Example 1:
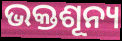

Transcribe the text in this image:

ଭକ୍ତଶୂନ୍ୟ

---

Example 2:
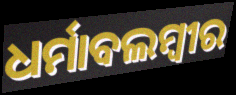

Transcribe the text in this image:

ଧର୍ମାବଲମ୍ବୀର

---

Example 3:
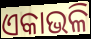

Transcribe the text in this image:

ଏକାଭଳି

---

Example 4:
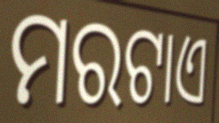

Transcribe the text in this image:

ମରଟାଏ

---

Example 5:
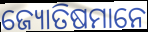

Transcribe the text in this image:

ଜ୍ୟୋତିଷମାନେ